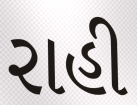
રાહી